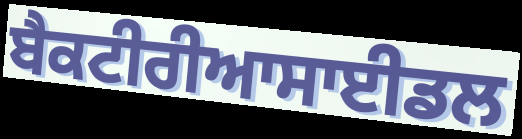
ਬੈਕਟੀਰੀਆਸਾਈਡਲ